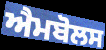
ਐਮਬੋਲਸ